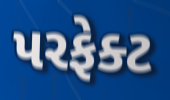
પરફેક્ટ